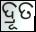
ଦ୍ରୂତ